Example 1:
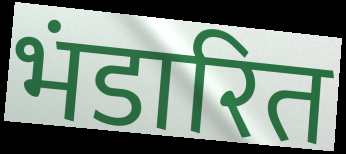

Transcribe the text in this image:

भंडारित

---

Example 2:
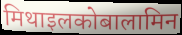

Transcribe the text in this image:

मिथाइलकोबालामिन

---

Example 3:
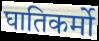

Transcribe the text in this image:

घातिकर्मो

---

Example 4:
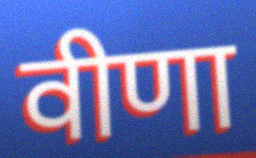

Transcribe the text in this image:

वीणा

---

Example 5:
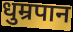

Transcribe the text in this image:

धुम्रपान